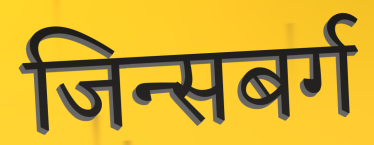
जिन्सबर्ग